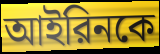
আইরিনকে